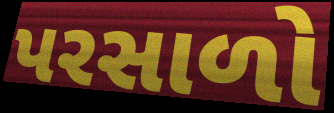
પરસાળો